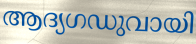
ആദ്യഗഡുവായി